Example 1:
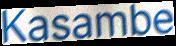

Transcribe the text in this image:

Kasambe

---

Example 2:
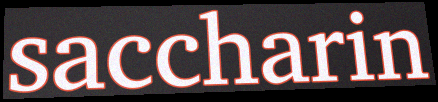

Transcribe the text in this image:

saccharin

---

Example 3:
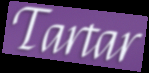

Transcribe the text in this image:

Tartar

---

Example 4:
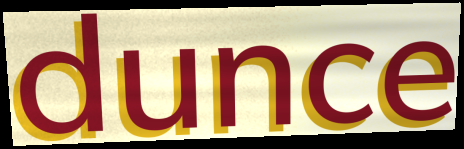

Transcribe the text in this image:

dunce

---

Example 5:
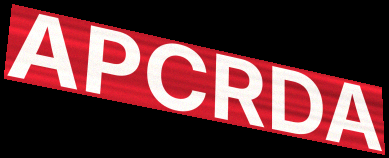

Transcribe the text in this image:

APCRDA